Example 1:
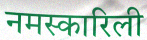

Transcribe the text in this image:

नमस्कारिली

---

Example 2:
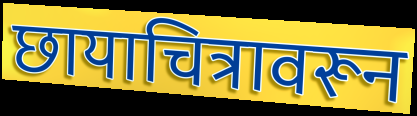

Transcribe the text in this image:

छायाचित्रावरून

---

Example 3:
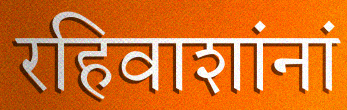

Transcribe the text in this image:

रहिवाशांनां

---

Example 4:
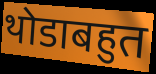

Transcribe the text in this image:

थोडाबहुत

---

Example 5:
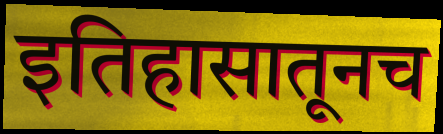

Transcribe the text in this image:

इतिहासातूनच